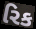
રિક